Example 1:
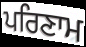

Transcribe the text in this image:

ਪਰਿਣਾਮ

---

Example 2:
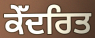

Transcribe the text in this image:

ਕੇੱਦਰਿਤ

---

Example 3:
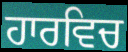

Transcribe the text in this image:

ਹਾਰਵਿਚ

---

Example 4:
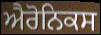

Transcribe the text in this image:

ਐਰੋਨਿਕਸ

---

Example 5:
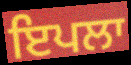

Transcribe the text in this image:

ਇਪਲਾ